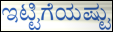
ಇಟ್ಟಿಗೆಯಷ್ಟು